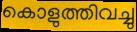
കൊളുത്തിവച്ചു